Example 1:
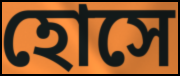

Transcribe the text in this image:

হোসে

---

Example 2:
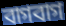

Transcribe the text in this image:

বাগবাগ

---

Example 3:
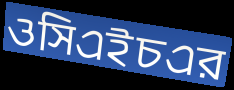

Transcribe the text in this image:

ওসিএইচএর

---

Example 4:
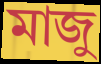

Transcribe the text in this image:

মাজু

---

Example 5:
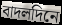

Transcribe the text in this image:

বাদলদিনে